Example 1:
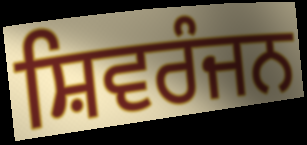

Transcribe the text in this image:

ਸ਼ਿਵਰੰਜਨ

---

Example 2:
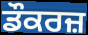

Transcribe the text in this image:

ਡੌਕਰਜ਼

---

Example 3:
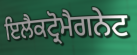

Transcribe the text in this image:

ਇਲੈਕਟ੍ਰੋਮੈਗਨੇਟ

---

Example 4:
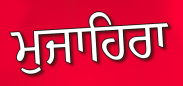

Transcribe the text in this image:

ਮੁਜਾਹਿਰਾ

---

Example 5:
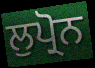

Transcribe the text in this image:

ਲੁਪ੍ਰੋਨ